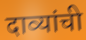
दाव्यांची